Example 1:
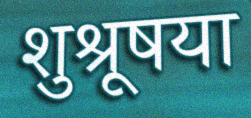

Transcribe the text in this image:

शुश्रूषया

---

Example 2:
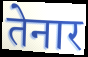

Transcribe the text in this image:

तेनार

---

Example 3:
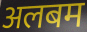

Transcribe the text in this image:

अलबम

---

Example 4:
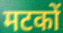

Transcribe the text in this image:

मटकों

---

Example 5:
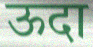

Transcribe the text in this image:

ऊदा